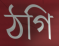
ঠগি